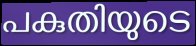
പകുതിയുടെ